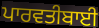
ਪਾਰਵਤੀਬਾਈ